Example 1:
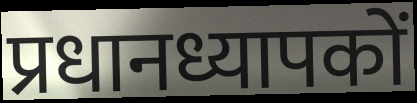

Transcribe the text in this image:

प्रधानध्यापकों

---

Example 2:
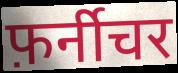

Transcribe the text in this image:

फ़र्नीचर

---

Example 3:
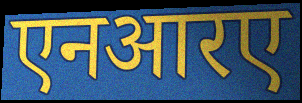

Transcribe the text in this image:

एनआरए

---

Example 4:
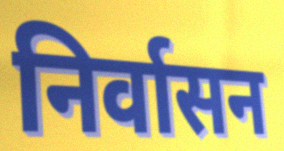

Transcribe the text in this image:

निर्वासन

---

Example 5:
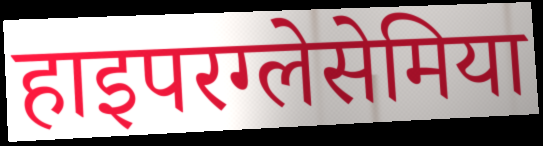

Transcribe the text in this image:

हाइपरग्लेसेमिया